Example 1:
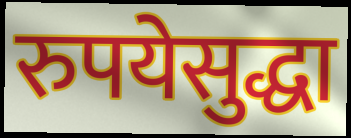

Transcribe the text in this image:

रुपयेसुद्धा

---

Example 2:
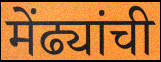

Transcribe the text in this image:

मेंढ्यांची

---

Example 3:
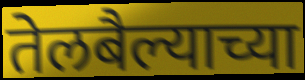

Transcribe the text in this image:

तेलबैल्याच्या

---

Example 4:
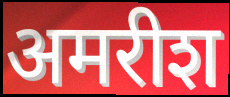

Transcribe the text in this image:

अमरीश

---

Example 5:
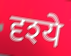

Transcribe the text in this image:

दृश्‍ये